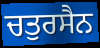
ਚਤੁਰਸੈਨ